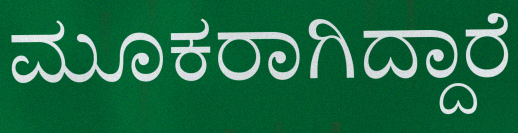
ಮೂಕರಾಗಿದ್ದಾರೆ